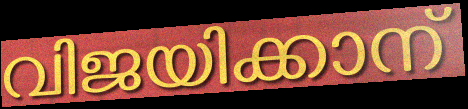
വിജയിക്കാന്